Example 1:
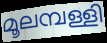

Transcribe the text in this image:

മൂലമ്പള്ളി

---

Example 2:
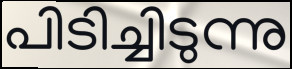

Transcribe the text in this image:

പിടിച്ചിടുന്നു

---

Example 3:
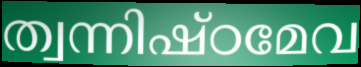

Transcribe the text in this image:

ത്വന്നിഷ്ഠമേവ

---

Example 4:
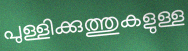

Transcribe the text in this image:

പുള്ളിക്കുത്തുകളുള്ള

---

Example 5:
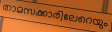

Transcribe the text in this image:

താമസക്കാരിലേറെയും